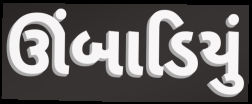
ઊંબાડિયું